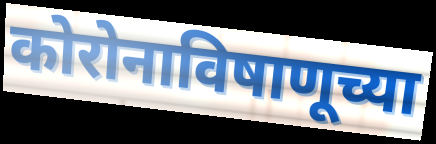
कोरोनाविषाणूच्या